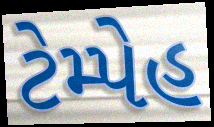
ટેમ્પેહ